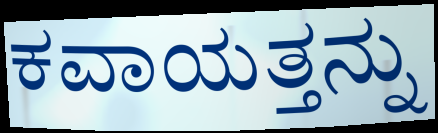
ಕವಾಯತ್ತನ್ನು